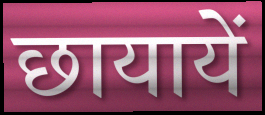
छायायें